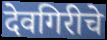
देवगिरीचे